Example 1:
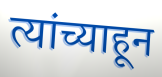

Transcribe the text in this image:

त्यांच्याहून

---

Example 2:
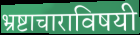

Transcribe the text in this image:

भ्रष्टाचाराविषयी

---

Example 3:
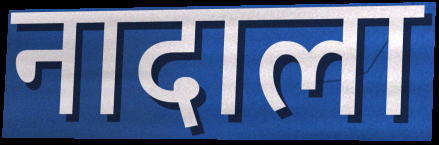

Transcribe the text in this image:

नादाला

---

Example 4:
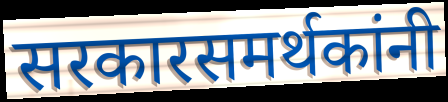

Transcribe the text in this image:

सरकारसमर्थकांनी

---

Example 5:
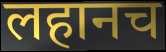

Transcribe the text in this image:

लहानच